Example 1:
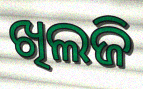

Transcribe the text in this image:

ଖିଲଜି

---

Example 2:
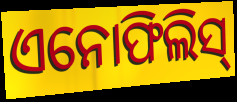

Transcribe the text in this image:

ଏନୋଫିଲିସ୍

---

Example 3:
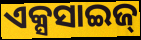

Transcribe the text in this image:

ଏକ୍ସସାଇଜ୍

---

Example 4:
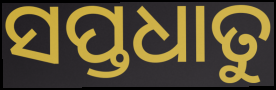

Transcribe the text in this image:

ସପ୍ତଧାତୁ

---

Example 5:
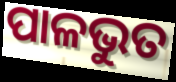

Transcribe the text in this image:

ପାଳଭୁତ